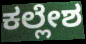
ಕಲ್ಲೇಶ